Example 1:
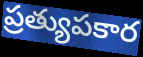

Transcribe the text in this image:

ప్రత్యుపకార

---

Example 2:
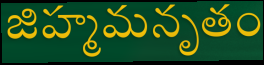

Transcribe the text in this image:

జిహ్మమనృతం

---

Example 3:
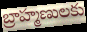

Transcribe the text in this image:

బ్రాహ్మణులకు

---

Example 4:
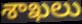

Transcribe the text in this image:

శాఖలు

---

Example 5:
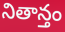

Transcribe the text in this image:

నితాన్తం